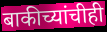
बाकीच्यांचीही